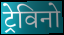
ट्रेविनो